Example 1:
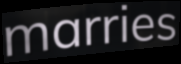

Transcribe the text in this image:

marries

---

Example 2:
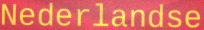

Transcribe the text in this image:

Nederlandse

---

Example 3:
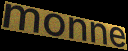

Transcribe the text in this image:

monne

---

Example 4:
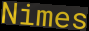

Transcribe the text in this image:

Nimes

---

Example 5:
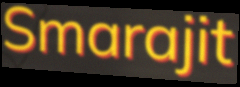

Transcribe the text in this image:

Smarajit